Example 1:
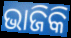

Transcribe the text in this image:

ଭାଜିକି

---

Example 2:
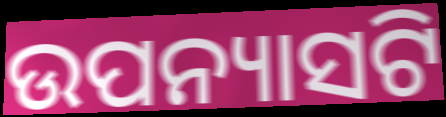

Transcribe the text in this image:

ଉପନ୍ୟାସଟି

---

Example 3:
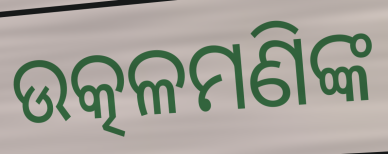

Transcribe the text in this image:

ଉତ୍କଳମଣିଙ୍କ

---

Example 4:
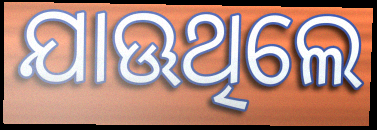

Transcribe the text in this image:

ଯାଊଥିଲେ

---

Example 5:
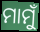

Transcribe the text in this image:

ମାମୁଁ